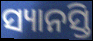
ସ୍ୟାନସ୍ତି